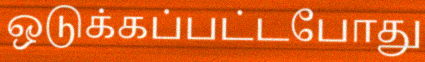
ஒடுக்கப்பட்டபோது